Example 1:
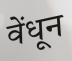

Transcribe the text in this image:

वेंधून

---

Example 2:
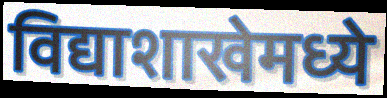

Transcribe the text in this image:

विद्याशाखेमध्ये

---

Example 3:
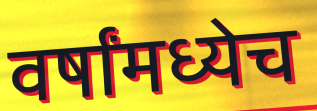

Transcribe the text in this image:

वर्षांमध्येच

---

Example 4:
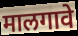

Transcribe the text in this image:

मालगावे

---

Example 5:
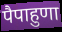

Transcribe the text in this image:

पैपाहुणा